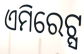
ଏମିରେଟ୍ସ